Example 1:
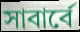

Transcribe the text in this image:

সাবার্বে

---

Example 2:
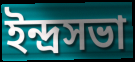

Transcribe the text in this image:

ইন্দ্রসভা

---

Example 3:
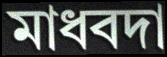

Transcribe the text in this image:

মাধবদা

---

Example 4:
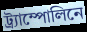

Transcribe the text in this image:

ট্র্যাম্পোলিনে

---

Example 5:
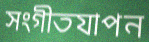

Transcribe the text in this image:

সংগীতযাপন